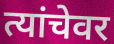
त्यांचेवर